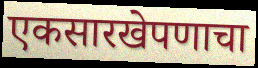
एकसारखेपणाचा